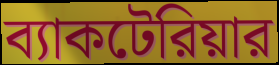
ব্যাকটেরিয়ার